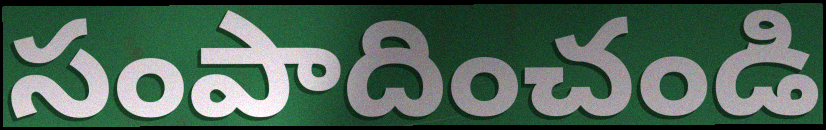
సంపాదించండి